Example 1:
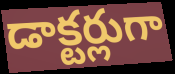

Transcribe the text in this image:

డాక్టర్లుగా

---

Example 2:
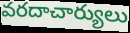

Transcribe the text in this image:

వరదాచార్యులు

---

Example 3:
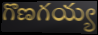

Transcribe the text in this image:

గొణగయ్య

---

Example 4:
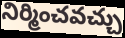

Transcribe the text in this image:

నిర్మించవచ్చు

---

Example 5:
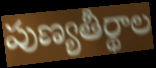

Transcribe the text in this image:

పుణ్యతీర్థాల